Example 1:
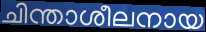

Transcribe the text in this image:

ചിന്താശീലനായ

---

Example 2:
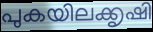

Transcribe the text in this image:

പുകയിലക്കൃഷി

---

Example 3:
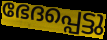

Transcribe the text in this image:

ഭേദപ്പെട്ടു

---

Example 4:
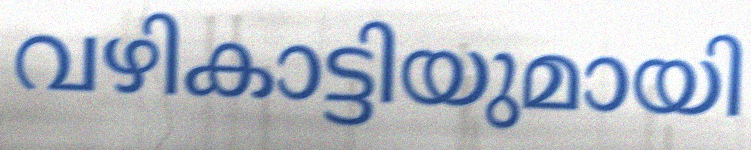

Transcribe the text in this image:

വഴികാട്ടിയുമായി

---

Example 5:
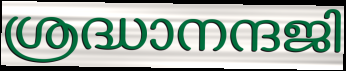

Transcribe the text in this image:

ശ്രദ്ധാനന്ദജി